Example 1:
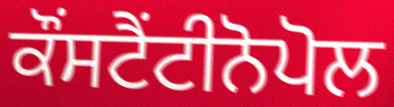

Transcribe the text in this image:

ਕੌਂਸਟੈਂਟੀਨੋਪੋਲ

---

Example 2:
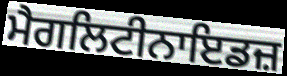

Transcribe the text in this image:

ਮੈਗਲਿਟੀਨਾਇਡਜ਼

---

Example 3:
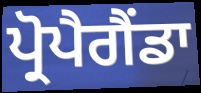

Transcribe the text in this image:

ਪ੍ਰੋਪੈਗੈਂਡਾ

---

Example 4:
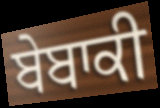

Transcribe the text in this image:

ਬੇਬਾਕੀ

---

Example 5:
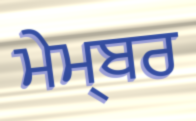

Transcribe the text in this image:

ਮੇਮ੍ਬਰ